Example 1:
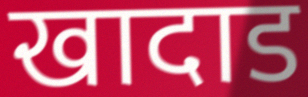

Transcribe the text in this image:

खादाड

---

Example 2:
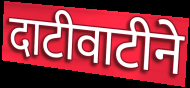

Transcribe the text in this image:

दाटीवाटीने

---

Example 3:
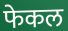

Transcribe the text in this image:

फेकल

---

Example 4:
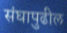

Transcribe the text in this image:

संघापुढील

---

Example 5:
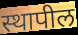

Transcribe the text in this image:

स्थापील